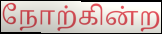
நோற்கின்ற